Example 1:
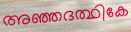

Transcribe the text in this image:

അഞ്ഞദത്ഥികേ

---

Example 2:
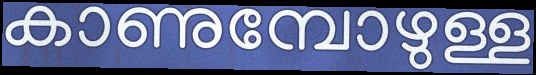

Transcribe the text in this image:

കാണുമ്പോഴുള്ള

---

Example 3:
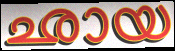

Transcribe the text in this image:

ഛായ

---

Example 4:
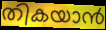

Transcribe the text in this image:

തികയാൻ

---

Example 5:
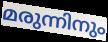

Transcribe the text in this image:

മരുന്നിനും